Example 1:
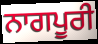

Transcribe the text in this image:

ਨਾਗਪੂਰੀ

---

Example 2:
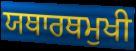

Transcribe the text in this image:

ਯਥਾਰਥਮੁਖੀ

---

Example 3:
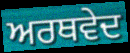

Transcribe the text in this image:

ਅਰਥਵੇਦ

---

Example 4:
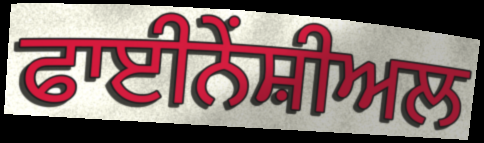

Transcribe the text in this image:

ਫਾਈਨੇਂਸ਼ੀਅਲ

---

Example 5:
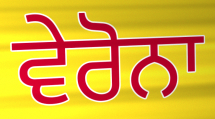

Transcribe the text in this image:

ਵੇਰੋਨਾ